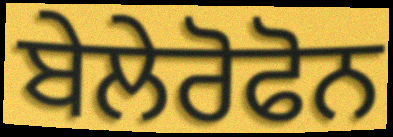
ਬੇਲੇਰੋਫੋਨ